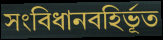
সংবিধানবহির্ভূত